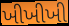
ખીખીખી